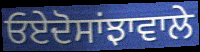
ਓਏਦੋਸਾਂਝਾਵਾਲੇ